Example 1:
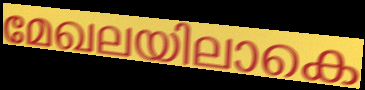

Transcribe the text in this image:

മേഖലയിലാകെ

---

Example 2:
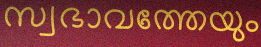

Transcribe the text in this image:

സ്വഭാവത്തേയും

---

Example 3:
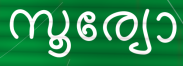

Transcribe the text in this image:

സൂര്യോ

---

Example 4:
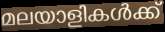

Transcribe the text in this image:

മലയാളികൾക്ക്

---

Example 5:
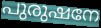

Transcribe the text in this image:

പുരുഷനേ